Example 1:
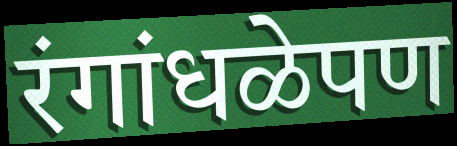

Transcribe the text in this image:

रंगांधळेपण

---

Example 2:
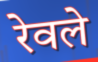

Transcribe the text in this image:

रेवले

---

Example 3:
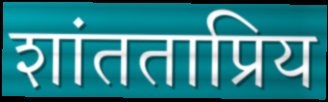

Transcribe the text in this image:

शांतताप्रिय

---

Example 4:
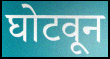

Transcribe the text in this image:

घोटवून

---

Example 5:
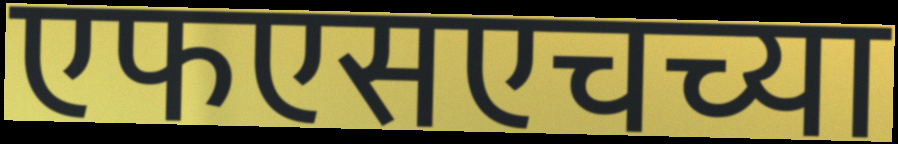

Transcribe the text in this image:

एफएसएचच्या